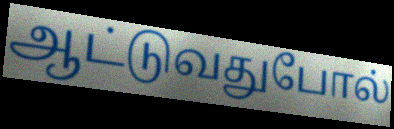
ஆட்டுவதுபோல்